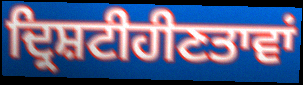
ਦ੍ਰਿਸ਼ਟੀਹੀਣਤਾਵਾਂ